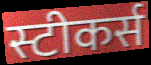
स्टीकर्स